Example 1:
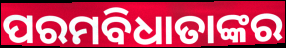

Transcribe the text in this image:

ପରମବିଧାତାଙ୍କର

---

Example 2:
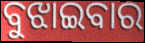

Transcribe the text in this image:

ବୁଝାଇବାର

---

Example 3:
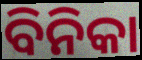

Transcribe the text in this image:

ବିନିକା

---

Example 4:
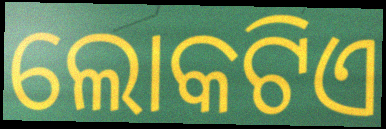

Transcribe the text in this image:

ଲୋକଟିଏ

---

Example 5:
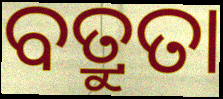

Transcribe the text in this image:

ବତ୍ରୁତା